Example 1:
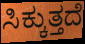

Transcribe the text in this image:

ಸಿಕ್ಕುತ್ತದೆ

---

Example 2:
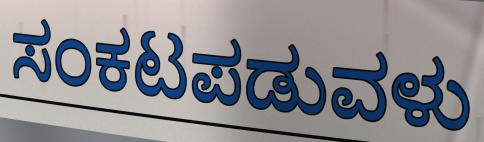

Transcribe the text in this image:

ಸಂಕಟಪಡುವಳು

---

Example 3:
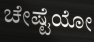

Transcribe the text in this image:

ಚೇಷ್ಟೆಯೋ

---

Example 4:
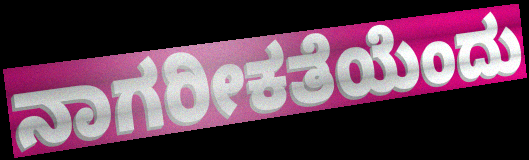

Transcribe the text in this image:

ನಾಗರೀಕತೆಯೆಂದು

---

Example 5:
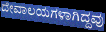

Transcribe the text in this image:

ದೇವಾಲಯಗಳಾಗಿದ್ದವು